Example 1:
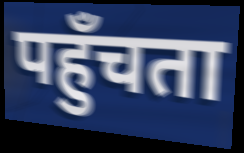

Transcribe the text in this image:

पहुँचता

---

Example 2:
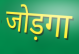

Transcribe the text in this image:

जोड़गा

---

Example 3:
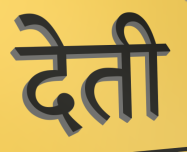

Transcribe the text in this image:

देती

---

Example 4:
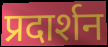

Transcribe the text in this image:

प्रदार्शन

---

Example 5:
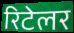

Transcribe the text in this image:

रिटेलर